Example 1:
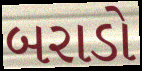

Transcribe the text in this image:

બરાડો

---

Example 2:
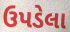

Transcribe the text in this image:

ઉપડેલા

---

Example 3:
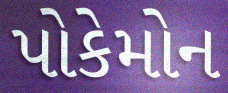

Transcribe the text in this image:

પોકેમોન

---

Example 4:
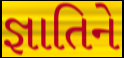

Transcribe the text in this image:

જ્ઞાતિને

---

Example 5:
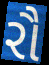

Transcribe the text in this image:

રૌ